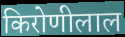
किरोणीलाल